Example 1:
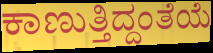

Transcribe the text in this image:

ಕಾಣುತ್ತಿದ್ದಂತೆಯೆ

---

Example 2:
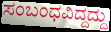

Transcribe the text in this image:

ಸಂಬಂಧವಿದ್ದದ್ದು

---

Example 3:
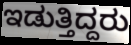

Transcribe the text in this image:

ಇಡುತ್ತಿದ್ದರು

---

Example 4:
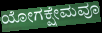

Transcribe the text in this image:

ಯೋಗಕ್ಷೇಮವೂ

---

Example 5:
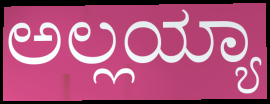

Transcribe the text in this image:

ಅಲ್ಲಯ್ಯಾ